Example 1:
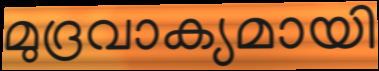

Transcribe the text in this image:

മുദ്രവാക്യമായി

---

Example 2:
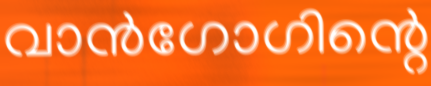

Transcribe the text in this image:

വാൻഗോഗിന്റെ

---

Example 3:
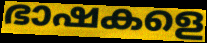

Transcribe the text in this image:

ഭാഷകളെ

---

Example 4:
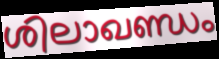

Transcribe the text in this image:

ശിലാഖണ്ഡം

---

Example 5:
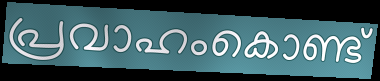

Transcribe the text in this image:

പ്രവാഹംകൊണ്ട്